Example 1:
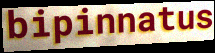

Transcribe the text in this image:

bipinnatus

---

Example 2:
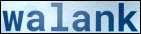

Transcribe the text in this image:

walank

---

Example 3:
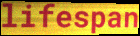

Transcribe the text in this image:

lifespan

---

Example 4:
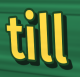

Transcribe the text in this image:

till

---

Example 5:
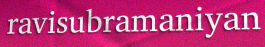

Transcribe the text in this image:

ravisubramaniyan